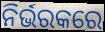
ନିର୍ଭରକରେ